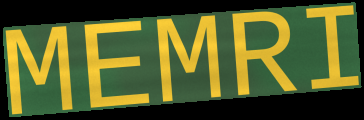
MEMRI